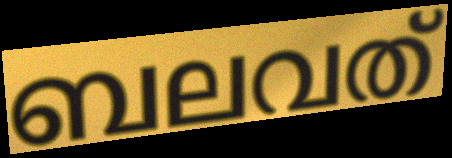
ബലവത്